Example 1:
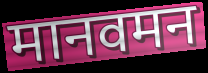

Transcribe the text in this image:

मानवमन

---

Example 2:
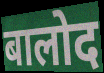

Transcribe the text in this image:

बालोद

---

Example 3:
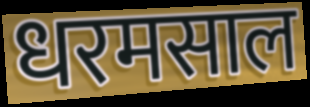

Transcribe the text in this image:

धरमसाल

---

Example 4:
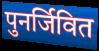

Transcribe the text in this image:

पुनर्जिवित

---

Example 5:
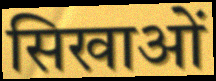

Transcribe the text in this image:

सिखाओं